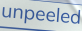
unpeeled